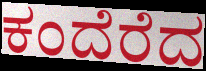
ಕಂದೆರೆದ